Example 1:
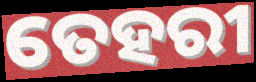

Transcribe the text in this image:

ତେହରୀ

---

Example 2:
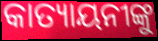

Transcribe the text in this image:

କାତ୍ୟାୟନୀଙ୍କୁ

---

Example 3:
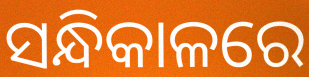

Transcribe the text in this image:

ସନ୍ଧିକାଳରେ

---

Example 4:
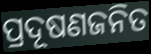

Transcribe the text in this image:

ପ୍ରଦୂଷଣଜନିତ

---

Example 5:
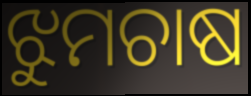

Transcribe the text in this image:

ଝୁମଚାଷ